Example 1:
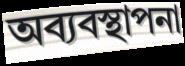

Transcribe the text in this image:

অব্যবস্থাপনা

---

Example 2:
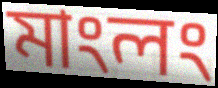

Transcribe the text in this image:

মাংলং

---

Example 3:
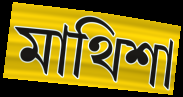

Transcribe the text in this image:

মাথিশা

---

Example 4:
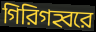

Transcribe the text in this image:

গিরিগহ্বরে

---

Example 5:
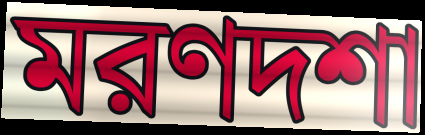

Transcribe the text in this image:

মরণদশা